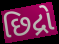
છિદ્રો